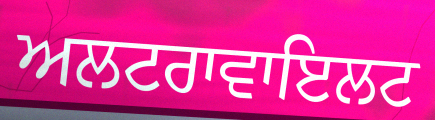
ਅਲਟਰਾਵਾਇਲਟ